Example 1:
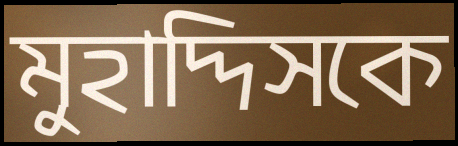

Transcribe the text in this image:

মুহাদ্দিসকে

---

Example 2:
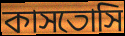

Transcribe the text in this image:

কাসতোসি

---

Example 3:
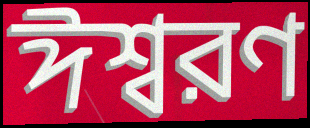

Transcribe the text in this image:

ঈশ্বরণ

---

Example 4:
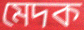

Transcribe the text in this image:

মেদক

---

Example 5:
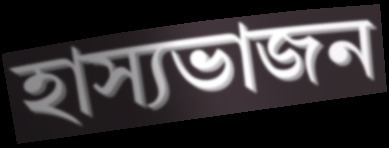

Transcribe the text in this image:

হাস্যভাজন